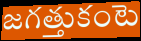
జగత్తుకంటె